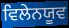
ਵਿਲੇਨਯੂਵ